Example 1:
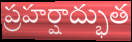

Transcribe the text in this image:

ప్రహర్షాద్భుత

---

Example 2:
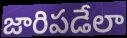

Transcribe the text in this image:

జారిపడేలా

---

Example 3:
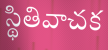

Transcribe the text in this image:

స్థితివాచక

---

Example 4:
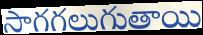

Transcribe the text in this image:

సాగగలుగుతాయి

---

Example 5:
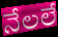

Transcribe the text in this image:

నేలలే